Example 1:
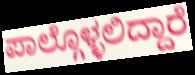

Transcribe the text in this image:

ಪಾಲ್ಗೊಳ್ಳಲಿದ್ದಾರೆ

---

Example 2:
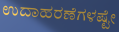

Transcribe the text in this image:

ಉದಾಹರಣೆಗಳಷ್ಟೇ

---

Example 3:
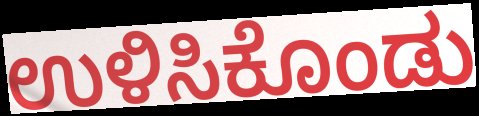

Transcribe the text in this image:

ಉಳಿಸಿಕೊಂಡು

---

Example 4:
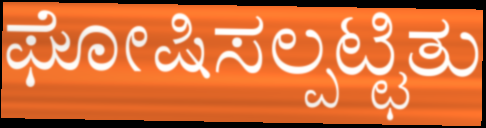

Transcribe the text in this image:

ಘೋಷಿಸಲ್ಪಟ್ಟಿತು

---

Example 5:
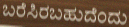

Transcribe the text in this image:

ಬರೆಸಿರಬಹುದೆಂದು